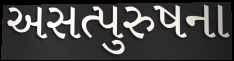
અસત્પુરુષના